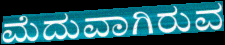
ಮೆದುವಾಗಿರುವ